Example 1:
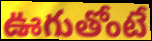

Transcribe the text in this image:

ఊగుతోంటే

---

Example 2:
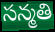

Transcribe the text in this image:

సన్మతి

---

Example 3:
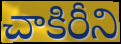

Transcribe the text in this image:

చాకిరీని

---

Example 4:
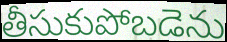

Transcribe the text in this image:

తీసుకుపోబడెను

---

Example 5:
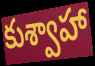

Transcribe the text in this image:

కుశ్వాహా